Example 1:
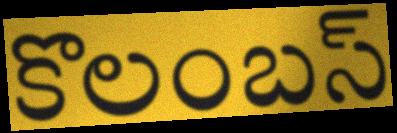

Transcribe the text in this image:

కొలంబస్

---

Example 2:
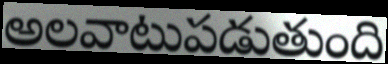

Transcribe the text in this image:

అలవాటుపడుతుంది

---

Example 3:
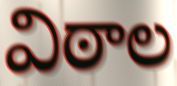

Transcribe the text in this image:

విఠాల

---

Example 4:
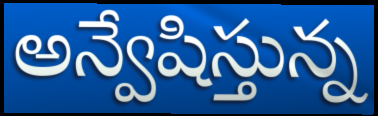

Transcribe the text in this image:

అన్వేషిస్తున్న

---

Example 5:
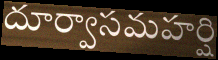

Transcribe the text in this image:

దూర్వాసమహర్షి